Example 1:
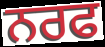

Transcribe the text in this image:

ਨਰਫ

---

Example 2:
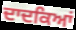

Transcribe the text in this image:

ਦਾਦਕਿਆਂ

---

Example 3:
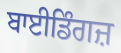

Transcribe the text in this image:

ਬਾਈਡਿੰਗਜ਼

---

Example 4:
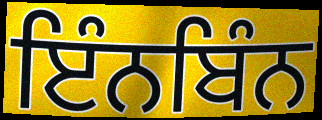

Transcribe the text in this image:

ਇੰਨਬਿੰਨ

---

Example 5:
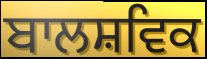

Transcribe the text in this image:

ਬਾਲਸ਼ਵਿਕ